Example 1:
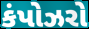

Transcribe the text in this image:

કંપોઝરો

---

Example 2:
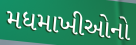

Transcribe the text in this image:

મધમાખીઓનો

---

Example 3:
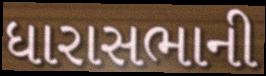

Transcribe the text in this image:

ધારાસભાની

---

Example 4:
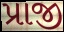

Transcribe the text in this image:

પ્રાજી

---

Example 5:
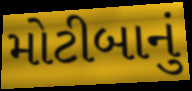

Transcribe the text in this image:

મોટીબાનું